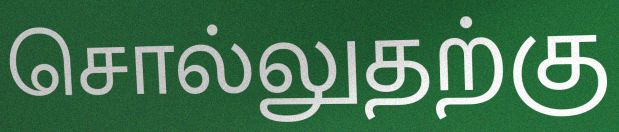
சொல்லுதற்கு